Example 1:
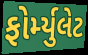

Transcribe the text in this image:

ફોર્મ્યુલેટ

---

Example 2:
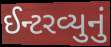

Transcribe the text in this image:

ઈન્ટરવ્યુનું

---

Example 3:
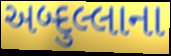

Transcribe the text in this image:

અબ્દુલ્લાના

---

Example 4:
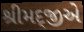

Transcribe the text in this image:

શ્રીમદ્જીએ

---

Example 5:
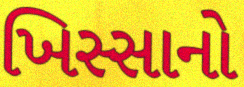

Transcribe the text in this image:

ખિસ્સાનો